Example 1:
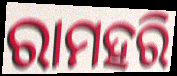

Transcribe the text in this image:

ରାମହରି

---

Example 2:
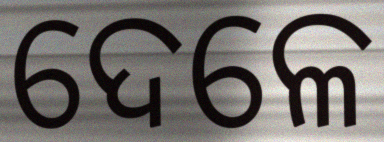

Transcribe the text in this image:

ଦେଳେ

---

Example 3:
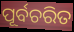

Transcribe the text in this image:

ପୂର୍ବଚରିତ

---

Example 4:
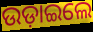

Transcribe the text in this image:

ଉଡ଼ାଇଲେ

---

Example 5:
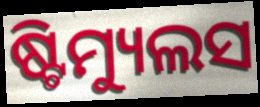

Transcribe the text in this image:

ଷ୍ଟିମ୍ୟୁଲସ